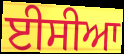
ਈਸੀਆ